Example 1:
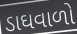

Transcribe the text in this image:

ડાઘવાળો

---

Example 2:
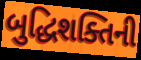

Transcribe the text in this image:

બુદ્ધિશક્તિની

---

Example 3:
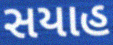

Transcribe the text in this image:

સયાહ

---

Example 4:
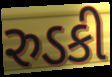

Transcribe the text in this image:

રુડકી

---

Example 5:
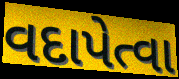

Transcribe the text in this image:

વદાપેત્વા